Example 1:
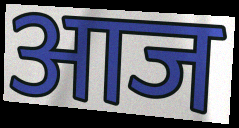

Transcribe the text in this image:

आज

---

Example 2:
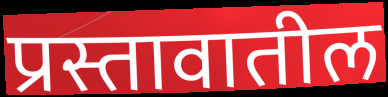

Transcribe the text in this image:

प्रस्तावातील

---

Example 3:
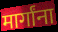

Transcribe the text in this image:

मार्गांना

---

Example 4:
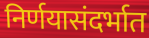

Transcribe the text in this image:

निर्णयासंदर्भात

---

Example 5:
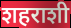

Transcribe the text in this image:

शहराशी